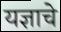
यज्ञाचे